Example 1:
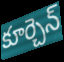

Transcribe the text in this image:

కూర్చెన్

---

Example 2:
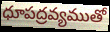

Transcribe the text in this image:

ధూపద్రవ్యముతో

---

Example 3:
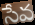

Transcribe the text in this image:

సేవ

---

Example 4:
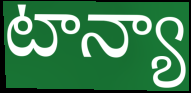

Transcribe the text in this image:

టాన్యా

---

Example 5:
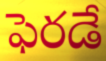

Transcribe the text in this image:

ఫెరడే